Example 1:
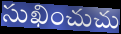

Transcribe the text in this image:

సుఖించుచు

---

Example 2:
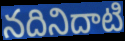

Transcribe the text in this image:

నదినిదాటి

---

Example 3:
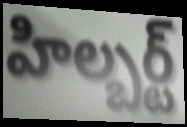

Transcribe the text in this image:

హిల్బర్ట్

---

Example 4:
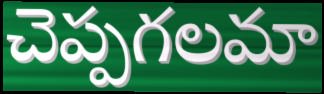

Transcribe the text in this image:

చెప్పగలమా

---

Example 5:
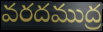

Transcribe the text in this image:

వరదముద్ర